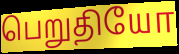
பெறுதியோ